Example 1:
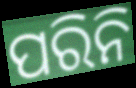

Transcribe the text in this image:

ପରିନି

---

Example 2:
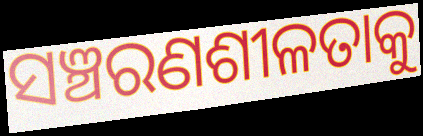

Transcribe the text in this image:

ସଞ୍ଚରଣଶୀଳତାକୁ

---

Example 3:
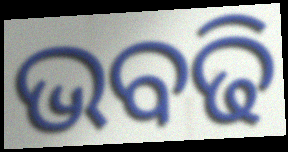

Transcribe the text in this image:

ଭବଢି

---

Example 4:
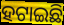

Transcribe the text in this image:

ହଟାଇଛି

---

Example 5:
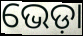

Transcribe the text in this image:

ଭେଡ଼ା